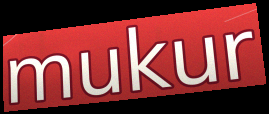
mukur